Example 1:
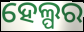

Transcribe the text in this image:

ହେଲ୍ପର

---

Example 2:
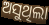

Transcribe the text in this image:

ଅସୁଥିଲା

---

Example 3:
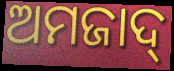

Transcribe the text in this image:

ଅମଜାଦ୍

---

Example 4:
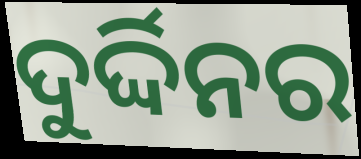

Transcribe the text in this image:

ଦୁର୍ଦ୍ଦିନର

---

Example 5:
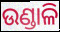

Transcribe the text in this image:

ଉଣ୍ଡାଳି